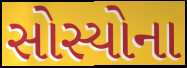
સોસ્યોના